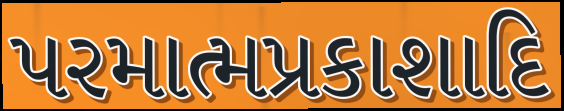
પરમાત્મપ્રકાશાદિ